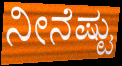
ನೀನೆಷ್ಟು